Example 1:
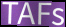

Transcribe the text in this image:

TAFs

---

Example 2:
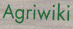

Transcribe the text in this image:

Agriwiki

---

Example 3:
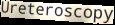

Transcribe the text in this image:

Ureteroscopy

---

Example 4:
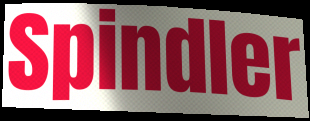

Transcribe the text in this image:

Spindler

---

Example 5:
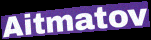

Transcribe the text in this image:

Aitmatov